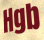
Hgb